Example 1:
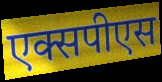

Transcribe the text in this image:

एक्सपीएस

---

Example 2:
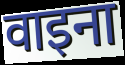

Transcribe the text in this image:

वाइना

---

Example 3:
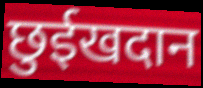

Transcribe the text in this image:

छुईखदान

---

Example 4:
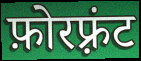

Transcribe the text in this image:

फ़ोरफ़्रंट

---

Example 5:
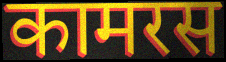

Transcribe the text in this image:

कामरस